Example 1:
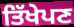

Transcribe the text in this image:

ਤਿੱਖੇਪਣ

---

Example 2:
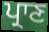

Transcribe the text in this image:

ਪ੍ਰਾਣ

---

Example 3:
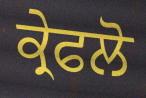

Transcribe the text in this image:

ਕ੍ਰੇਫਲੋ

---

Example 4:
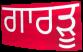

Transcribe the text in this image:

ਗਾਰੜੂ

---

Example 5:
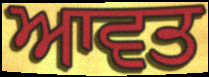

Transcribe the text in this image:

ਆਵਤ